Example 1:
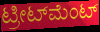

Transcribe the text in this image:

ಟ್ರೀಟ್‌ಮೆಂಟ್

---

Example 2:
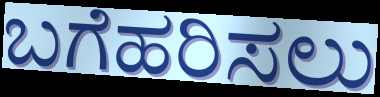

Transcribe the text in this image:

ಬಗೆಹರಿಸಲು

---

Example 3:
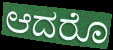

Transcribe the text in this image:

ಆದರೊ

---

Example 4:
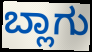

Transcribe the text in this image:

ಬ್ಲಾಗು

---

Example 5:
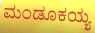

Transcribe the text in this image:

ಮಂಡೂಕಯ್ಯ